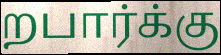
றபார்க்கு